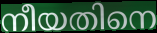
നീയതിനെ